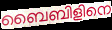
ബൈബിളിനെ